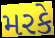
મરકે